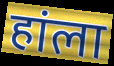
हांला